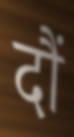
दौं